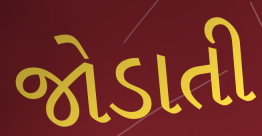
જોડાતી